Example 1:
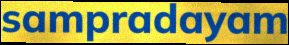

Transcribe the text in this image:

sampradayam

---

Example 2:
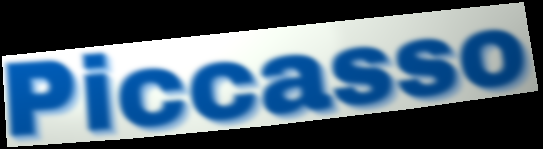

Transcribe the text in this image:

Piccasso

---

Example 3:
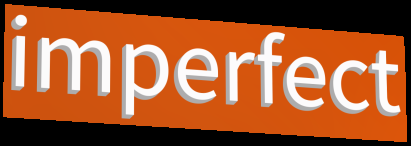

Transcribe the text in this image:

imperfect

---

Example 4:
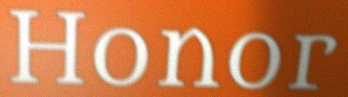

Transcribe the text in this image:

Honor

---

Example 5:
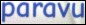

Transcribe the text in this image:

paravu